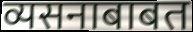
व्यसनाबाबत